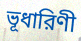
ভূধারিণী